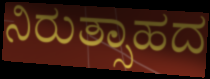
ನಿರುತ್ಸಾಹದ